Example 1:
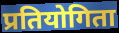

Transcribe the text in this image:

प्रतियोगिता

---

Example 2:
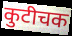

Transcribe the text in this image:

कुटीचक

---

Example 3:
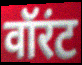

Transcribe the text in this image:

वॉरंट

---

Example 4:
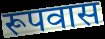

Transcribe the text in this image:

रूपवास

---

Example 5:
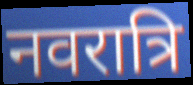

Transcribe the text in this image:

नवरात्रि